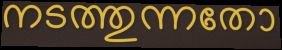
നടത്തുന്നതോ